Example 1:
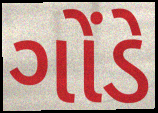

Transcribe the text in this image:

ગોંડે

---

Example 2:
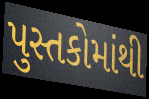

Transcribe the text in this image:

પુસ્તકોમાંથી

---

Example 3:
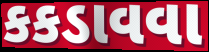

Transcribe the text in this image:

કકડાવવા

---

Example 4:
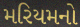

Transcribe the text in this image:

મરિયમનો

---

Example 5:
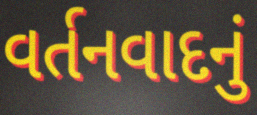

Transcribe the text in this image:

વર્તનવાદનું